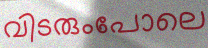
വിടരുംപോലെ